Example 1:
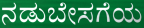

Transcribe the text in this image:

ನಡುಬೇಸಗೆಯ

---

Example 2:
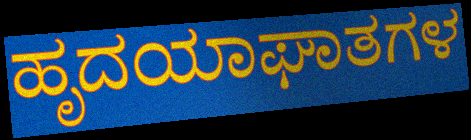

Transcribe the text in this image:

ಹೃದಯಾಘಾತಗಳ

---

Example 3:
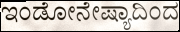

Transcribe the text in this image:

ಇಂಡೋನೇಷ್ಯಾದಿಂದ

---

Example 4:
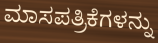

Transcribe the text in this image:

ಮಾಸಪತ್ರಿಕೆಗಳನ್ನು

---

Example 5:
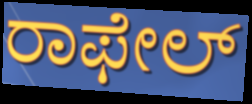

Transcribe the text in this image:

ರಾಫೇಲ್